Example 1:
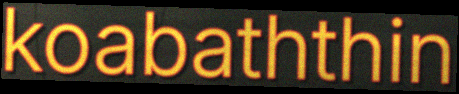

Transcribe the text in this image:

koabaththin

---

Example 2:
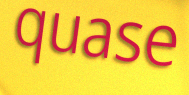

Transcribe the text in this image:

quase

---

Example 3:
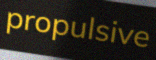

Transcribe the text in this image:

propulsive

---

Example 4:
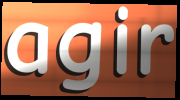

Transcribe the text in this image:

agir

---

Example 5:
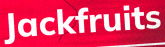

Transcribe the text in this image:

Jackfruits